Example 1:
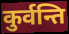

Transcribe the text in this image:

कुर्वन्ति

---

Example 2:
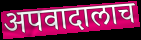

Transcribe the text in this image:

अपवादालाच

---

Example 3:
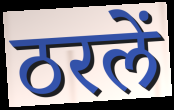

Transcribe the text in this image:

ठरलें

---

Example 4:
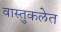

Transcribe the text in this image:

वास्तुकलेत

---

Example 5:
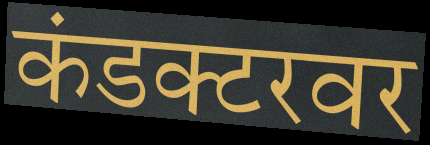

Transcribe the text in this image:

कंडक्टरवर